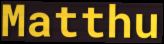
Matthu